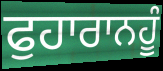
ਫੁਹਾਰਾਨਹੂੰ